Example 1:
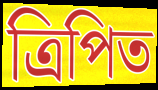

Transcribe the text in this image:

ত্রিপিত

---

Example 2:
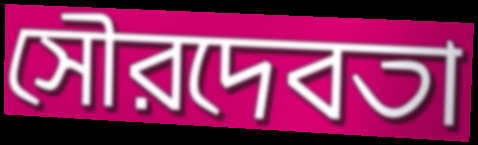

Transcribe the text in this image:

সৌরদেবতা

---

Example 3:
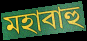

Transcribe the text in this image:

মহাবাহু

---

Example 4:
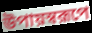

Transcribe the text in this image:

উপায়স্বরূপে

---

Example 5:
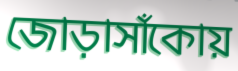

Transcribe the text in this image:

জোড়াসাঁকোয়